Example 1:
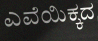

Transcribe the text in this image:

ಎವೆಯಿಕ್ಕದ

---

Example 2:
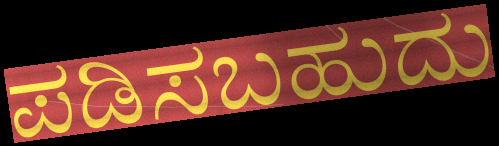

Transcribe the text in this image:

ಪಡಿಸಬಹುದು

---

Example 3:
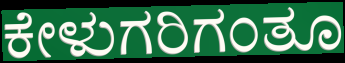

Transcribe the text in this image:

ಕೇಳುಗರಿಗಂತೂ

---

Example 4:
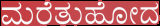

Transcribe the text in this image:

ಮರೆತುಹೋದ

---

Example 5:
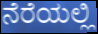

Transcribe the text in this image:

ನೆರೆಯಲ್ಲಿ